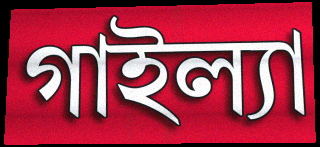
গাইল্যা